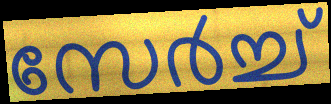
സേർച്ച്